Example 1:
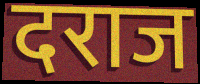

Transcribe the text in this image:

दराज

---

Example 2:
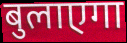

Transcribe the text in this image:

बुलाएगा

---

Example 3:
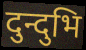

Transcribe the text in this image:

दुन्दुभि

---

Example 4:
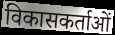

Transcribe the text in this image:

विकासकर्ताओं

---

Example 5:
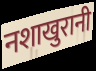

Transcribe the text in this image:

नशाखुरानी